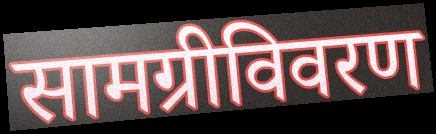
सामग्रीविवरण